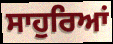
ਸਾਹੁਰਿਆਂ